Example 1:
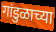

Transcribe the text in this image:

गांडुळाच्या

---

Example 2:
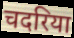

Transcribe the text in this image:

चदरिया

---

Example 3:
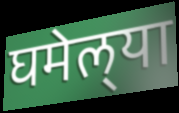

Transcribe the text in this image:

घमेल्या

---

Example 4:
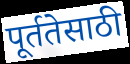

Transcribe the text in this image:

पूर्ततेसाठी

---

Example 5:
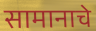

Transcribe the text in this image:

सामानाचे